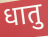
धातु